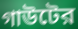
গাউটের